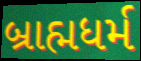
બ્રાહ્મધર્મ